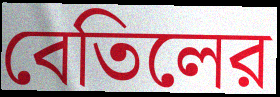
বেতিলের